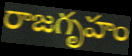
రాజగృహం